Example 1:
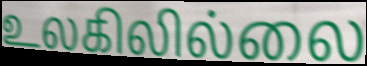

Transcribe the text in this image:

உலகிலில்லை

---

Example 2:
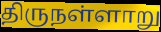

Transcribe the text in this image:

திருநள்ளாறு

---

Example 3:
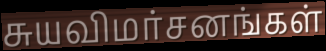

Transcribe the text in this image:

சுயவிமர்சனங்கள்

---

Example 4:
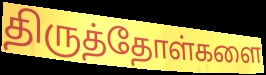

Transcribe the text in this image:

திருத்தோள்களை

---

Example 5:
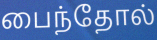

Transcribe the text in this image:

பைந்தோல்